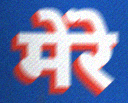
मेंरे